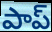
పాప్